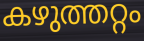
കഴുത്തറ്റം